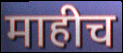
माहीच